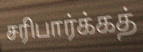
சரிபார்க்கத்